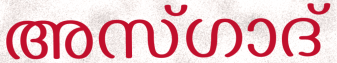
അസ്ഗാദ്